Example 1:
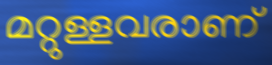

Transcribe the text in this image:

മറ്റുള്ളവരാണ്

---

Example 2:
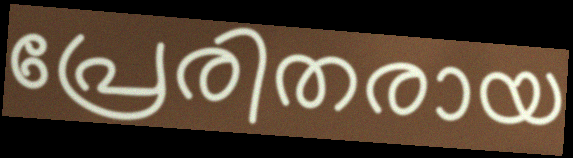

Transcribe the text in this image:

പ്രേരിതരായ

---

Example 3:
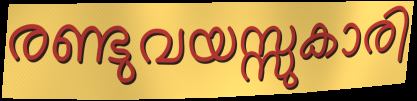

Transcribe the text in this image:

രണ്ടുവയസ്സുകാരി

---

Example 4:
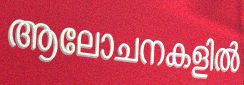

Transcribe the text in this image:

ആലോചനകളിൽ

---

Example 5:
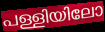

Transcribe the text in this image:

പള്ളിയിലോ